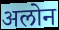
अलोन